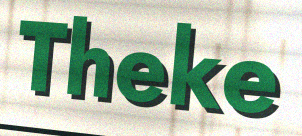
Theke